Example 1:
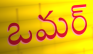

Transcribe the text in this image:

ఒమర్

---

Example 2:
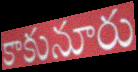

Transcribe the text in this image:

కాకునూరు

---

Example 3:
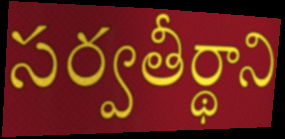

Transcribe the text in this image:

సర్వతీర్థాని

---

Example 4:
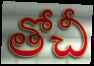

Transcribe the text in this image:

తోచీ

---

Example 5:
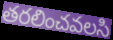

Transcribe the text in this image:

తరలించవలసి